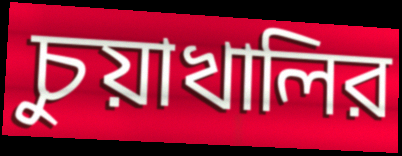
চুয়াখালির